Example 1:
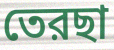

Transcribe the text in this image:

তেরছা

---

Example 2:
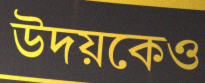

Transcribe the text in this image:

উদয়কেও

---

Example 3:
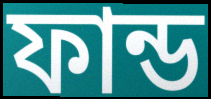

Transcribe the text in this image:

ফান্ড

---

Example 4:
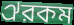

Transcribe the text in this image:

ঐরকম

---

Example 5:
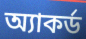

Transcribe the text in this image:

অ্যাকর্ড